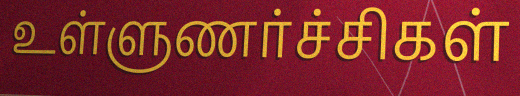
உள்ளுணர்ச்சிகள்